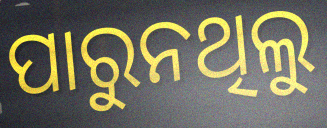
ପାରୁନଥିଲୁ